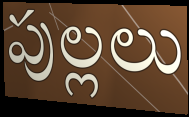
పుల్లలు